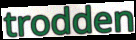
trodden